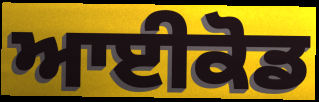
ਆਈਕੋਡ